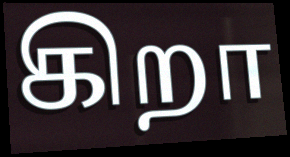
கிறா